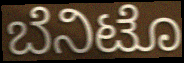
ಬೆನಿಟೊ